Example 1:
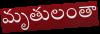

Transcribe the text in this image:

మృతులంతా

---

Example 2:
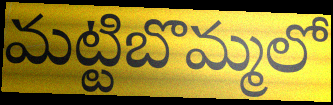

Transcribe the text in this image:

మట్టిబొమ్మలో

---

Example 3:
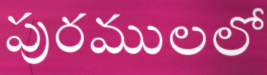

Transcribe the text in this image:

పురములలో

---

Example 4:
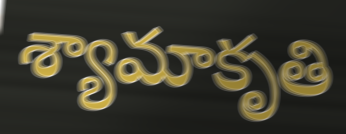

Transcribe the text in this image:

శ్యామాకృతి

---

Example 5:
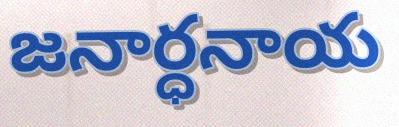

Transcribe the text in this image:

జనార్ధనాయ